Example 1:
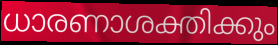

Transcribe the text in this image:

ധാരണാശക്തിക്കും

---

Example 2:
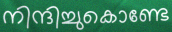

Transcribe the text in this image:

നിന്ദിച്ചുകൊണ്ടേ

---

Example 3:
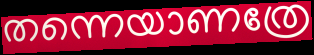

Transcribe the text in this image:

തന്നെയാണത്രേ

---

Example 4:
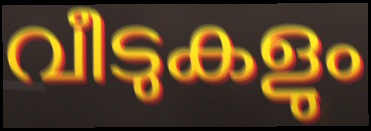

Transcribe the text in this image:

വീടുകളും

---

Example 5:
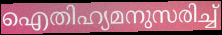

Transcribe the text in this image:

ഐതിഹ്യമനുസരിച്ച്